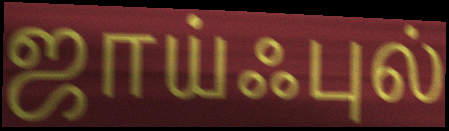
ஜாய்ஃபுல்